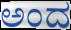
ಅಂದ